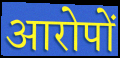
आरोपों